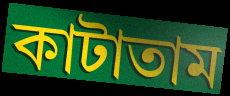
কাটাতাম